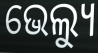
ଭେଲ୍ୟୁ